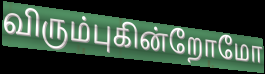
விரும்புகின்றோமோ